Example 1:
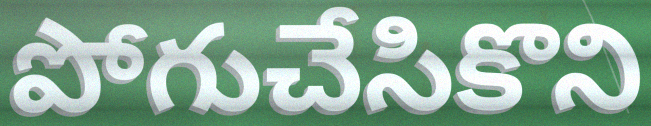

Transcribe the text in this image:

పోగుచేసికొని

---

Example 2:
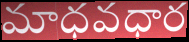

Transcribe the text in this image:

మాధవధార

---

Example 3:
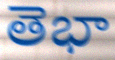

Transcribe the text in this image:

తెభా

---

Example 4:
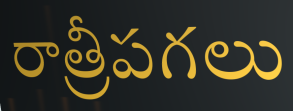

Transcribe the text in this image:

రాత్రీపగలు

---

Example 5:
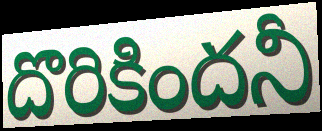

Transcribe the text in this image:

దొరికిందనీ